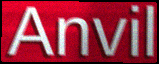
Anvil